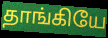
தாங்கியே